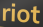
riot